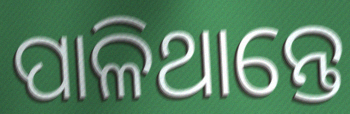
ପାଳିଥାନ୍ତେ